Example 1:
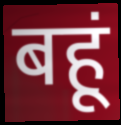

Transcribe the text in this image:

बहूं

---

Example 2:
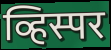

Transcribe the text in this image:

व्हिस्पर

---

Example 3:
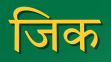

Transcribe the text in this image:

जिक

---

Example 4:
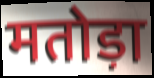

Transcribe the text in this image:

मतोड़ा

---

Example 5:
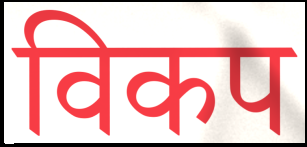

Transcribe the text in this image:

विकप